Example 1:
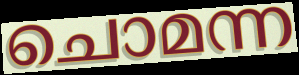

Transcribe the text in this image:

ചൊമന്ന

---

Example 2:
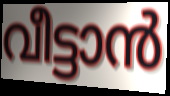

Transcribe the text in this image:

വീട്ടാൻ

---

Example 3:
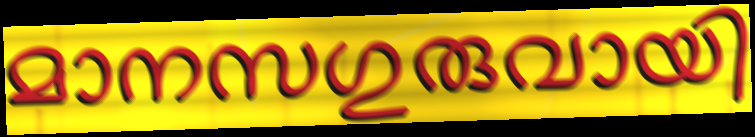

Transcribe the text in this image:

മാനസഗുരുവായി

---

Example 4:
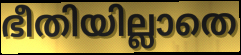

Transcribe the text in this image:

ഭീതിയില്ലാതെ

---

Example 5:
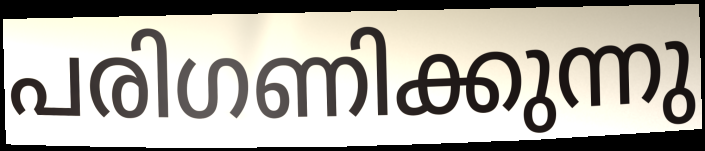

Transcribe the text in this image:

പരിഗണിക്കുന്നു